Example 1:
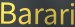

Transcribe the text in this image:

Barari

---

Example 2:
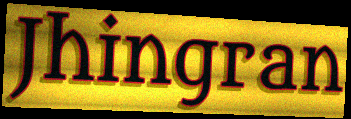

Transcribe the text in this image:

Jhingran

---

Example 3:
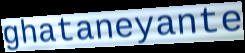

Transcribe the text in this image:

ghataneyante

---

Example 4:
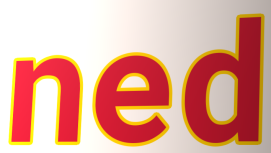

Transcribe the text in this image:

ned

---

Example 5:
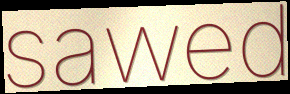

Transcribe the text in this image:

sawed